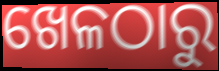
ଖେଳଠାରୁ